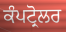
ਕੰਪਟ੍ਰੋਲਰ